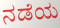
ನಡೆಯ